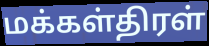
மக்கள்திரள்